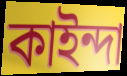
কাইন্দা